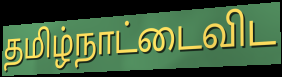
தமிழ்நாட்டைவிட